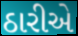
ઠારીએ